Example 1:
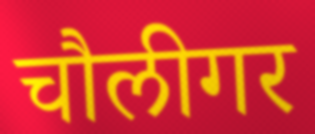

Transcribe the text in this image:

चौलीगर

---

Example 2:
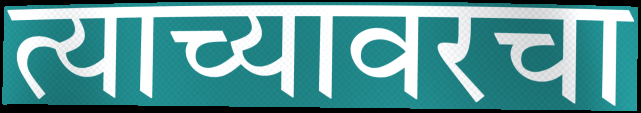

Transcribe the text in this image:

त्याच्यावरचा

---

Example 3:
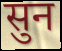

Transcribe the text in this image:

सुन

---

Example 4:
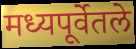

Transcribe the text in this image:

मध्यपूर्वेतले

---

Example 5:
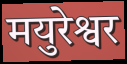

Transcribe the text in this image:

मयुरेश्वर